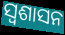
ସ୍ବଶାସନ